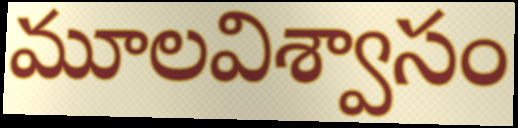
మూలవిశ్వాసం